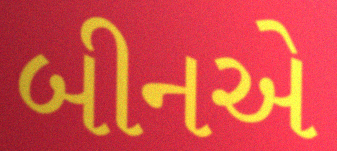
બીનએ